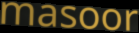
masoor